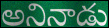
అనినాడు